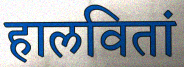
हालवितां